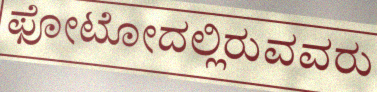
ಫೋಟೋದಲ್ಲಿರುವವರು